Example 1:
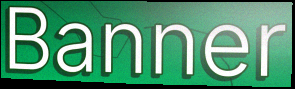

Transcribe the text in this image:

Banner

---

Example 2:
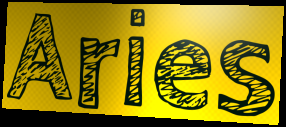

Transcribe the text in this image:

Aries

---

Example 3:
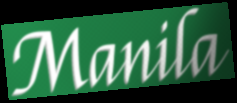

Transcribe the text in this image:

Manila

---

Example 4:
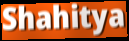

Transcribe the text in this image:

Shahitya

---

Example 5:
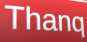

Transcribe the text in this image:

Thanq